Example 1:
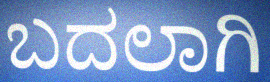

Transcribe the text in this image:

ಬದಲಾಗಿ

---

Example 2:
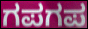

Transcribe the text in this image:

ಗಪಗಪ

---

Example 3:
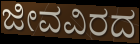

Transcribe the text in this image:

ಜೀವವಿರದ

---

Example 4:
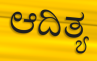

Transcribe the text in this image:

ಆದಿತ್ಯ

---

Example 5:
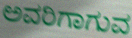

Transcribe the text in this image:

ಅವರಿಗಾಗುವ